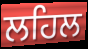
ਲਹਿਲ